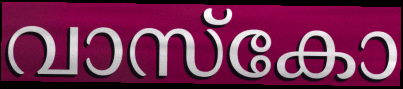
വാസ്കോ